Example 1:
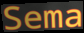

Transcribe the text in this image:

Sema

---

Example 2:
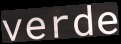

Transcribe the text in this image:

verde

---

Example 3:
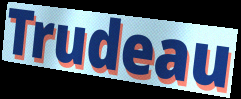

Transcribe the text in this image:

Trudeau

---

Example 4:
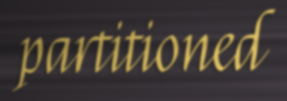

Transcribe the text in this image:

partitioned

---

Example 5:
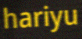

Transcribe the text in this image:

hariyu